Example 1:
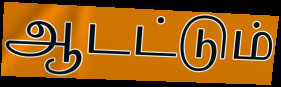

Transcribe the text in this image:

ஆடட்டும்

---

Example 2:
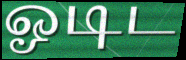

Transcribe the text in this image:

ஓடிட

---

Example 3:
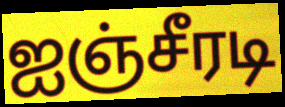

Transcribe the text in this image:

ஐஞ்சீரடி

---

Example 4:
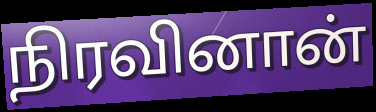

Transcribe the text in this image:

நிரவினான்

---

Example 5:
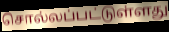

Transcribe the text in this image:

சொல்லப்பட்டுள்ளது